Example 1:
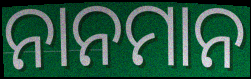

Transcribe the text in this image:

ନାନମାନ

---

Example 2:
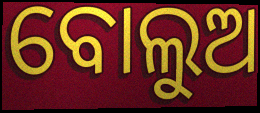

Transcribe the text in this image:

ବୋଲୁଅ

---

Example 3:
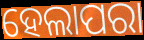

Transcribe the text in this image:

ହେଲାପରା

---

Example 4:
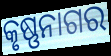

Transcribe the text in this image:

କୃଷ୍ଣନାଗର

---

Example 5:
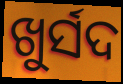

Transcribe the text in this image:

ଖୁର୍ସଦ